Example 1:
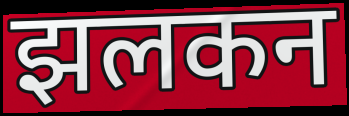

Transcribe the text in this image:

झलकन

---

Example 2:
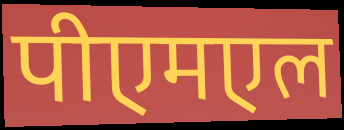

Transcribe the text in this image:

पीएमएल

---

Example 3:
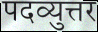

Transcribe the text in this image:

पदव्युत्तर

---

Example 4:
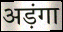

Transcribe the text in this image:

अड़ंगा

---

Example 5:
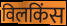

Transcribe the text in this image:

विलकिंस